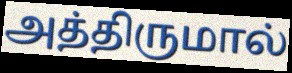
அத்திருமால்